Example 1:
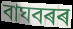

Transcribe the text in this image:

বাঘবৰৰ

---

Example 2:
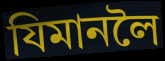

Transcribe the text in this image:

যিমানলৈ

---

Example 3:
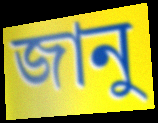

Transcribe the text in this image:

জানু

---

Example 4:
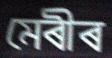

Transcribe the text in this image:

মেৰীৰ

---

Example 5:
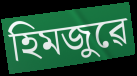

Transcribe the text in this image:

হিমজুৱে